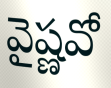
వైష్ణవో